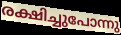
രക്ഷിച്ചുപോന്നു